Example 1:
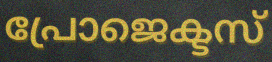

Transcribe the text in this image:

പ്രോജെക്ടസ്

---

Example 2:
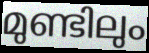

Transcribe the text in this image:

മുണ്ടിലും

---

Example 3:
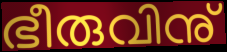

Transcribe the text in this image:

ഭീരുവിനു്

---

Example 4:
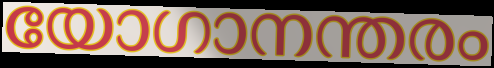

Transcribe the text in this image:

യോഗാനന്തരം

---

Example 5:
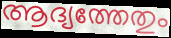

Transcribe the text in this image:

ആദ്യത്തേതും